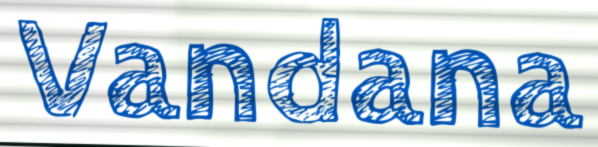
Vandana